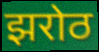
झरोठ